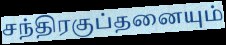
சந்திரகுப்தனையும்